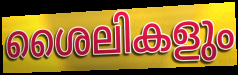
ശൈലികളും